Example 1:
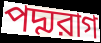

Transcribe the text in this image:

পদ্মরাগ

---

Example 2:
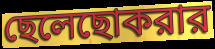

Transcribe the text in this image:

ছেলেছোকরার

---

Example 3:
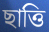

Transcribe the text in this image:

ছাত্তি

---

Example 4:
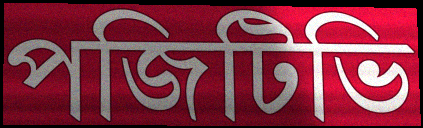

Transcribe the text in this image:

পজিটিভি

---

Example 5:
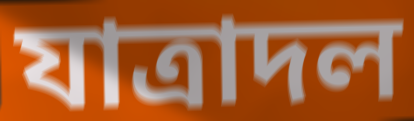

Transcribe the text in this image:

যাত্রাদল